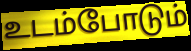
உடம்போடும்